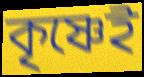
কৃষ্ণেই